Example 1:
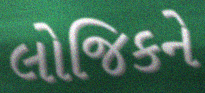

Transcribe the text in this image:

લોજિકને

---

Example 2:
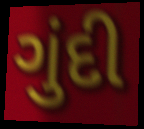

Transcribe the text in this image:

ગુંદી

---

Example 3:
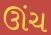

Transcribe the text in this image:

ઊંચ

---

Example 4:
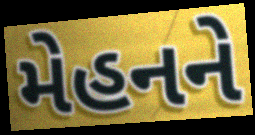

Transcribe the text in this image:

મેહનને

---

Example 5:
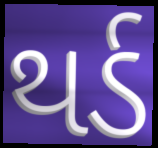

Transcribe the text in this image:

થર્ડ